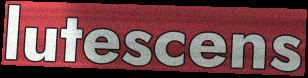
lutescens